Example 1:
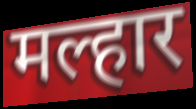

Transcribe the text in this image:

मल्हार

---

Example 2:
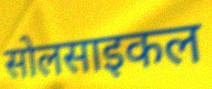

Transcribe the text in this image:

सोलसाइकल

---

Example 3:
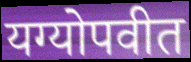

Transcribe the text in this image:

यग्योपवीत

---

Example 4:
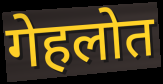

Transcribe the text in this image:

गेहलोत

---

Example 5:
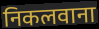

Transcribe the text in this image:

निकलवाना